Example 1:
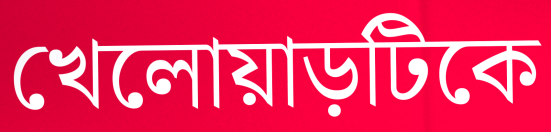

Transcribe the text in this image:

খেলোয়াড়টিকে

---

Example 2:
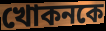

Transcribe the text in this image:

খোকনকে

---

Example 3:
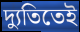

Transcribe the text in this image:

দ্যুতিতেই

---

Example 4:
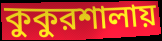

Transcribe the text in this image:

কুকুরশালায়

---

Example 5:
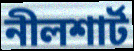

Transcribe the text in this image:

নীলশার্ট